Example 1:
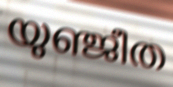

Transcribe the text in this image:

യുഞ്ജീത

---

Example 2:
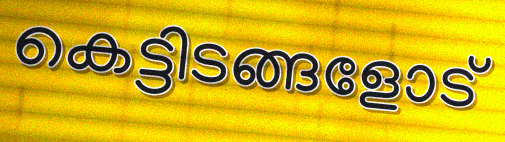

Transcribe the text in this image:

കെട്ടിടങ്ങളോട്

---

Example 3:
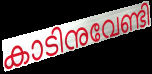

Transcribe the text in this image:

കാടിനുവേണ്ടി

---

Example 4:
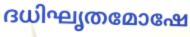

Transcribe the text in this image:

ദധിഘൃതമോഷേ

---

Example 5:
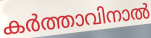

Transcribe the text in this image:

കർത്താവിനാൽ